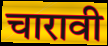
चारावी